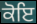
ਕੋਇ